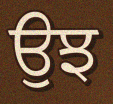
ਉਝ